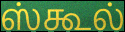
ஸ்கூல்